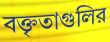
বক্তৃতাগুলির